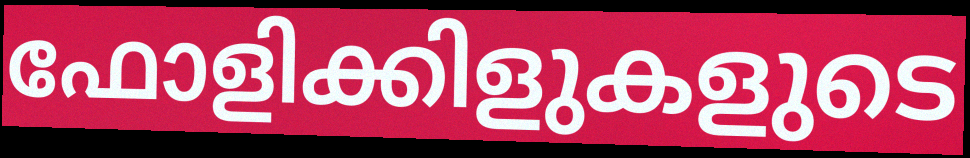
ഫോളിക്കിളുകളുടെ